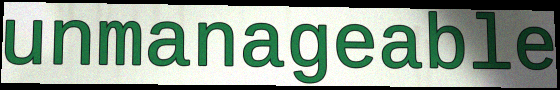
unmanageable